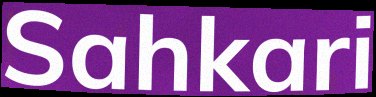
Sahkari